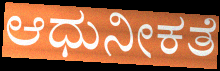
ಆಧುನೀಕತೆ